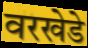
वरखेडे